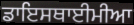
ਡਾਇਸਥਾਈਮੀਆ